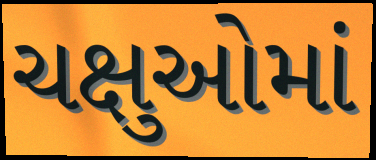
ચક્ષુઓમાં